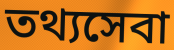
তথ্যসেবা